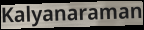
Kalyanaraman